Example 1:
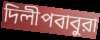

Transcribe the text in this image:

দিলীপবাবুরা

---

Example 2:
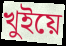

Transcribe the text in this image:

খুইয়ে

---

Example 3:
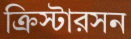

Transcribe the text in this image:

ক্রিস্টারসন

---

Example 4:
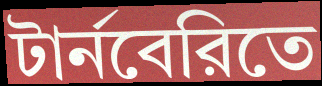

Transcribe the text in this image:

টার্নবেরিতে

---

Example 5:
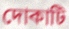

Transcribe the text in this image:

দোকাটি